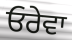
ਓਰੇਵਾ